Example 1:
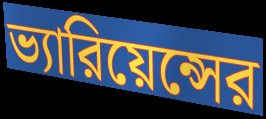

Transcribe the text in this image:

ভ্যারিয়েন্সের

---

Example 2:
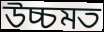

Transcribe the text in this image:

উচ্চমত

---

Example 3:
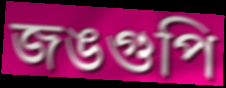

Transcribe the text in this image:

জঙগুপি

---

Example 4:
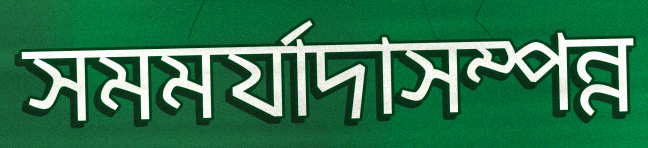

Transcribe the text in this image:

সমমর্যাদাসম্পন্ন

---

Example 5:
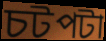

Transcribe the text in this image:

চটপটা